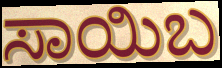
ಸಾಯಿಬ